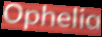
Ophelia